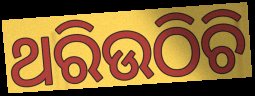
ଥରିଉଠିଚି